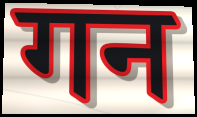
गन